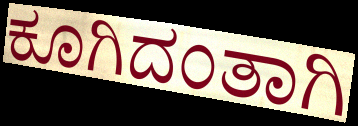
ಕೂಗಿದಂತಾಗಿ